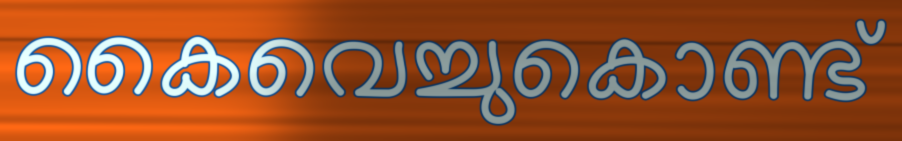
കൈവെച്ചുകൊണ്ട്